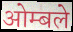
ओम्बले